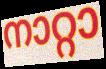
നാറ്റാ